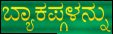
ಬ್ಯಾಕಪ್ಗಳನ್ನು